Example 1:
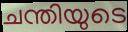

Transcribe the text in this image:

ചന്തിയുടെ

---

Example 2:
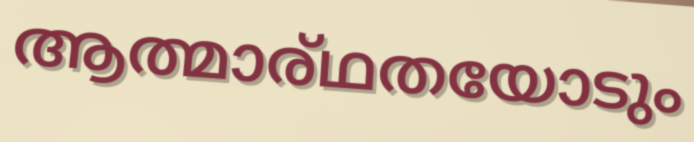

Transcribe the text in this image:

ആത്മാര്ഥതയോടും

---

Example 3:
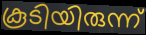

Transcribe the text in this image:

കൂടിയിരുന്ന്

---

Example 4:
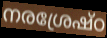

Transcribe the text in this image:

നരശ്രേഷ്ഠ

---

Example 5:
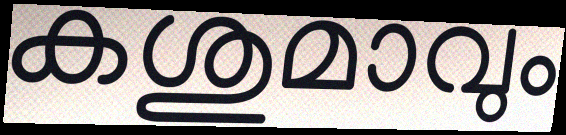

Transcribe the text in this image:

കശുമാവും